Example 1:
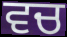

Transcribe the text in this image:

ਵਚ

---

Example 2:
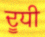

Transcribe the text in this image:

ਦੂਧੀ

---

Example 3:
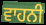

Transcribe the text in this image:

ਵਾਹਨੀ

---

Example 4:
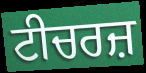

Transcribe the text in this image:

ਟੀਚਰਜ਼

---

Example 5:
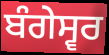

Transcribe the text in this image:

ਬੰਗੇਸ੍ਵਰ